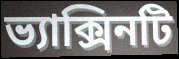
ভ্যাক্সিনটি